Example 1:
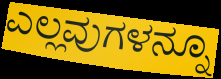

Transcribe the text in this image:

ಎಲ್ಲವುಗಳನ್ನೂ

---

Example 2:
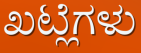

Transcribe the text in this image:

ಖಟ್ಲೆಗಳು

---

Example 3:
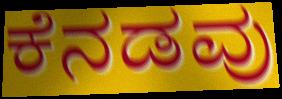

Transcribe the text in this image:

ಕೆನಡವು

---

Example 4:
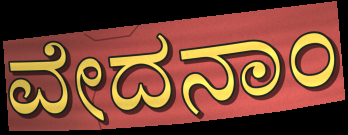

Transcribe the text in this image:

ವೇದನಾಂ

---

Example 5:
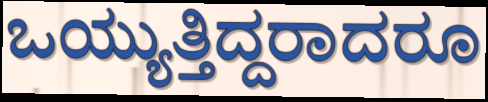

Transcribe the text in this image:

ಒಯ್ಯುತ್ತಿದ್ದರಾದರೂ